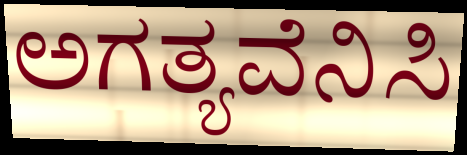
ಅಗತ್ಯವೆನಿಸಿ